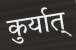
कुर्यात्